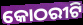
କୋଠରୀଟି